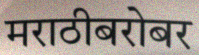
मराठीबरोबर